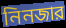
নিনজার